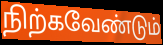
நிற்கவேண்டும்